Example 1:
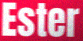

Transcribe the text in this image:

Ester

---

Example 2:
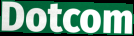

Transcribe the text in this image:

Dotcom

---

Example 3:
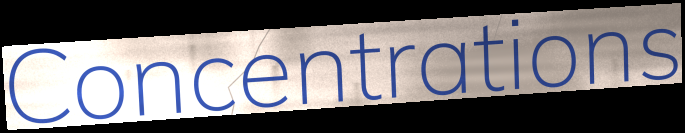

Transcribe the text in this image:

Concentrations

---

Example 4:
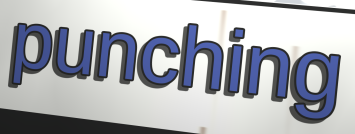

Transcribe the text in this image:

punching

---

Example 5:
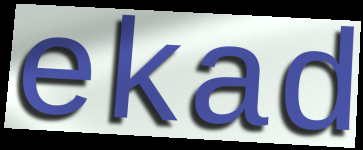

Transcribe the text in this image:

ekad